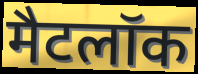
मैटलॉक